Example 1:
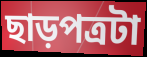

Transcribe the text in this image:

ছাড়পত্রটা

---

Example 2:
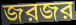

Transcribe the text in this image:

জরজর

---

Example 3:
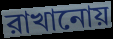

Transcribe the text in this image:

রাখানোয়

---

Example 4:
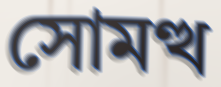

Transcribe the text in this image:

সোমত্থ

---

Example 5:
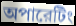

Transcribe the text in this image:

অপারেটিং